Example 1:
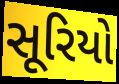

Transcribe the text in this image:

સૂરિયો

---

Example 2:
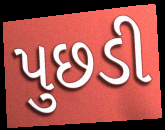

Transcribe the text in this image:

પુછડી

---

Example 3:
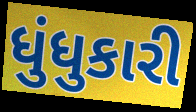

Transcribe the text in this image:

ધુંધુકારી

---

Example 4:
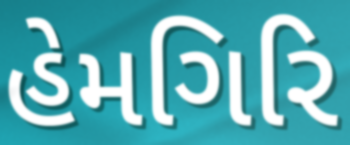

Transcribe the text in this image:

હેમગિરિ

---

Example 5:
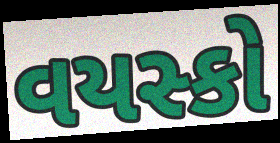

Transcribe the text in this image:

વયસ્કો